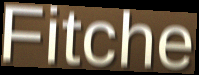
Fitche